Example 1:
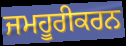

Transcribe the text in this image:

ਜਮਹੂਰੀਕਰਨ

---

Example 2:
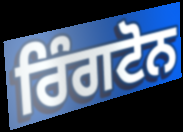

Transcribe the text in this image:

ਰਿੰਗਟੋਨ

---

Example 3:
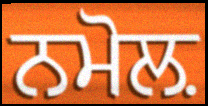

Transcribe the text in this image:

ਨਮੋਲ਼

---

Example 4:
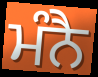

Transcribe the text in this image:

ਮੰਨੈ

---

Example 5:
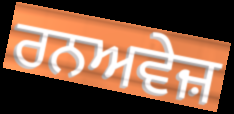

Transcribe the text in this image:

ਰਨਅਵੇਜ਼